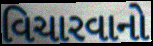
વિચારવાનો